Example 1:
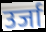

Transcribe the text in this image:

उर्जा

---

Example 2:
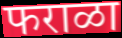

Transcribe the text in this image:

फराळा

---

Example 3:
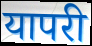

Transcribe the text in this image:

यापरी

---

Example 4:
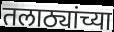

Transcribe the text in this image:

तलाठ्यांच्या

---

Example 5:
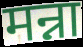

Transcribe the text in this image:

मन्ना